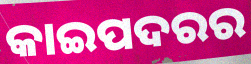
କାଇପଦରର